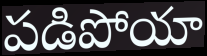
పడిపోయా